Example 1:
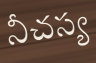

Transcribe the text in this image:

నీచస్య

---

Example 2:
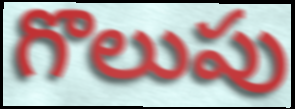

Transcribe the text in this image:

గొలుపు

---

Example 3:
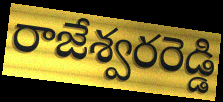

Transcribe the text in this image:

రాజేశ్వరరెడ్డి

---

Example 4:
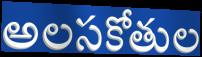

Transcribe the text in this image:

అలసకోతుల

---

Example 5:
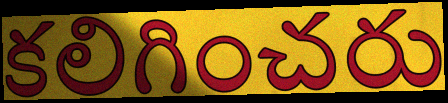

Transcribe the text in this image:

కలిగించరు